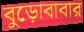
বুড়োবাবার